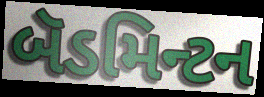
બૅડમિન્ટન